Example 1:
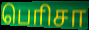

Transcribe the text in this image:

பெரிசா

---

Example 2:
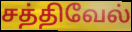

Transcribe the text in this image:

சத்திவேல்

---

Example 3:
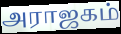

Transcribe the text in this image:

அராஜகம்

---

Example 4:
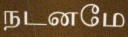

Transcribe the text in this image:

நடனமே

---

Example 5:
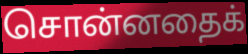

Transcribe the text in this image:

சொன்னதைக்